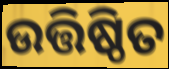
ଉତ୍ତିଷ୍ଠିତ